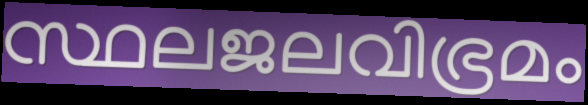
സ്ഥലജലവിഭ്രമം